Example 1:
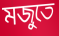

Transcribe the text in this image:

মজুতে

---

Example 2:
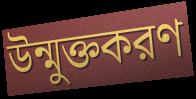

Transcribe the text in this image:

উন্মুক্তকরণ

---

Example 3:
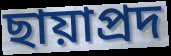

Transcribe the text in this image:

ছায়াপ্রদ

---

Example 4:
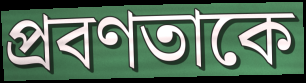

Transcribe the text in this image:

প্রবণতাকে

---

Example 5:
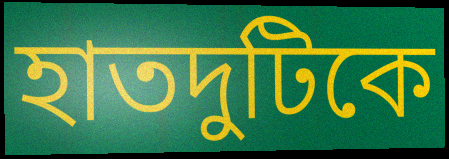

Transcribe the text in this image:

হাতদুটিকে